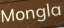
Mongla